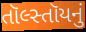
તૉલ્સ્તૉયનું